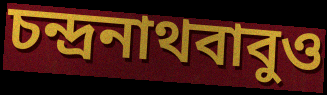
চন্দ্রনাথবাবুও